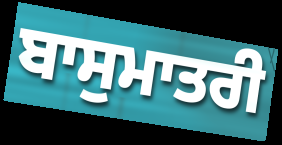
ਬਾਸੁਮਾਤਰੀ